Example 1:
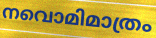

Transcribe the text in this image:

നവൊമിമാത്രം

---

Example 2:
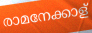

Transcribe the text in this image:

രാമനേക്കാള്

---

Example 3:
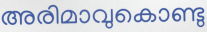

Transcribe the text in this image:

അരിമാവുകൊണ്ടു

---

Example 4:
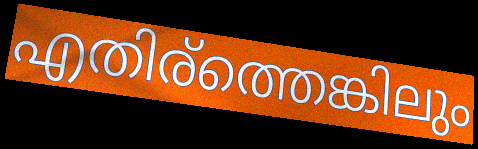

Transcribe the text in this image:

എതിര്ത്തെങ്കിലും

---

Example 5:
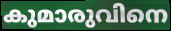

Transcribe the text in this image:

കുമാരുവിനെ